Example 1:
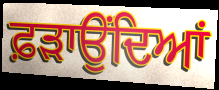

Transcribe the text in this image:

ਫ਼ੜਾਉਂਦਿਆਂ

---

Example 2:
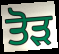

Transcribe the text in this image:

ਤੋਡ਼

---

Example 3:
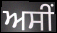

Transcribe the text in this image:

ਅਸੀੰ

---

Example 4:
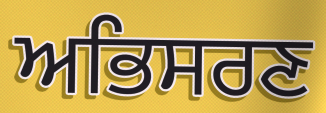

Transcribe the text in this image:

ਅਭਿਸਰਣ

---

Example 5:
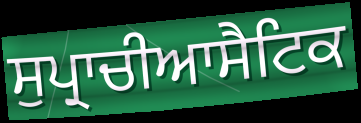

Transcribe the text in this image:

ਸੁਪ੍ਰਾਚੀਆਸੈਟਿਕ